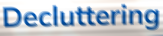
Decluttering